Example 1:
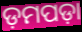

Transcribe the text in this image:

ଡ଼ମପଡ଼ା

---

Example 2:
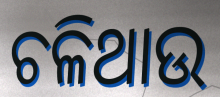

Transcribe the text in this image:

ଚଳିଥାଉ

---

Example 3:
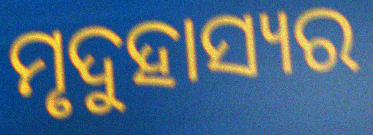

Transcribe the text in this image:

ମୃଦୁହାସ୍ୟର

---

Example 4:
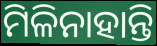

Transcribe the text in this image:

ମିଳିନାହାନ୍ତି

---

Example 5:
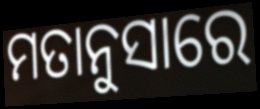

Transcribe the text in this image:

ମତାନୁସାରେ